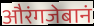
औरंगजेबानं